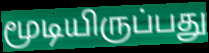
மூடியிருப்பது